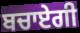
ਬਚਾਏਗੀ